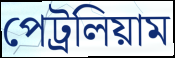
পেট্রলিয়াম